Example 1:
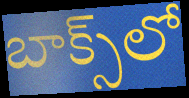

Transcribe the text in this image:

బాక్స్‌లో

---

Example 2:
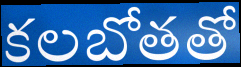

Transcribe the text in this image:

కలబోతతో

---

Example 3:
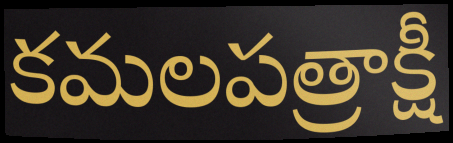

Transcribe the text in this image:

కమలపత్రాక్షీ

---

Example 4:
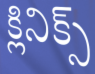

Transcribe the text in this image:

క్లినిక్స్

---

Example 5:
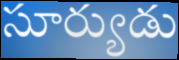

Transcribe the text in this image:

సూర్యుడు